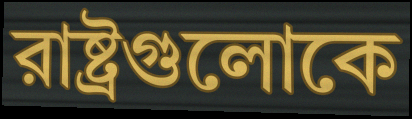
রাষ্ট্রগুলোকে